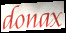
donax